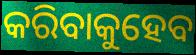
କରିବାକୁହେବ